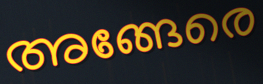
അങ്ങേരെ